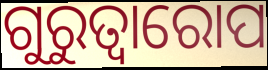
ଗୁରୁତ୍ବାରୋପ